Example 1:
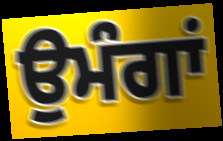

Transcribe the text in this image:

ਉਮੰਗਾਂ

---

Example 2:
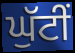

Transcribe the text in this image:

ਘੁੱਟੀਂ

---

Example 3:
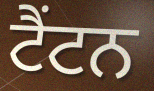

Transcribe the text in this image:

ਟੈਂਟਨ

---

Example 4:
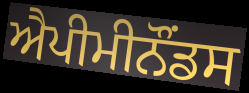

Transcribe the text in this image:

ਐਪੀਮੀਨੌਂਡਸ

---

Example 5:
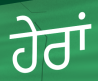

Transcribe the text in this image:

ਹੇਰਾਂ